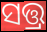
ସତ୍ତ୍ର